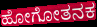
ಹೋಗೋತನಕ